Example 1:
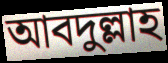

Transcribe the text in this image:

আবদুল্লাহ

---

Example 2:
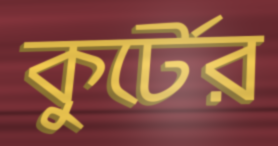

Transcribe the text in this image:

কুর্টের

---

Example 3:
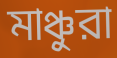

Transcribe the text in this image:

মাঞ্চুরা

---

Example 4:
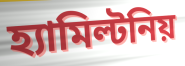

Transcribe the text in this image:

হ্যামিল্টনিয়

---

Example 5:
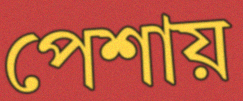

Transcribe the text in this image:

পেশায়